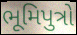
ભૂમિપુત્રો